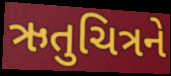
ઋતુચિત્રને